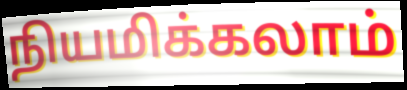
நியமிக்கலாம்